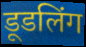
डूडलिंग